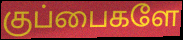
குப்பைகளே